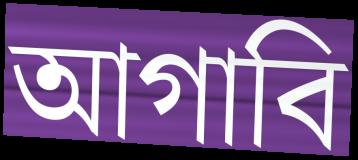
আগাবি